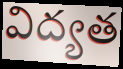
విద్యత